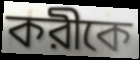
করীকে